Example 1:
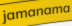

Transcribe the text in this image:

jamanama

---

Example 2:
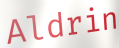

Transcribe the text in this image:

Aldrin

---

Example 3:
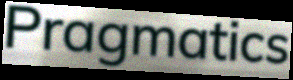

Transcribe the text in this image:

Pragmatics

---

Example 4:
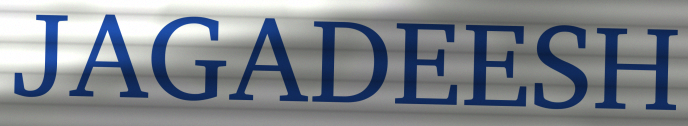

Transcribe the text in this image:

JAGADEESH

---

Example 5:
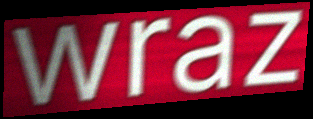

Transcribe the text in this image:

wraz